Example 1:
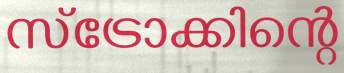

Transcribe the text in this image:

സ്ട്രോക്കിന്റെ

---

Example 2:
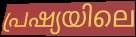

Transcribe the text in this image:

പ്രഷ്യയിലെ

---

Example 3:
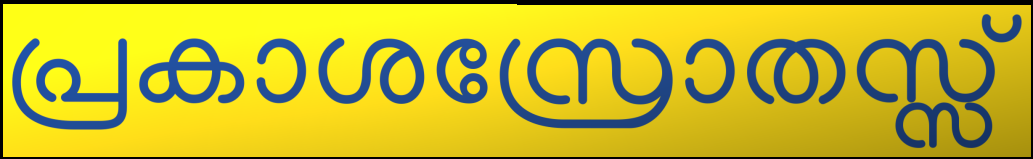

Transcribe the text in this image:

പ്രകാശസ്രോതസ്സ്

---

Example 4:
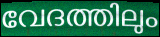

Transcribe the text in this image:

വേദത്തിലും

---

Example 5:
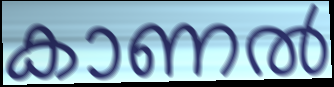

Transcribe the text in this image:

കാണൽ